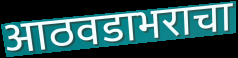
आठवडाभराचा